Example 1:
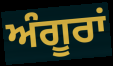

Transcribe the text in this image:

ਅੰਗੂਰਾਂ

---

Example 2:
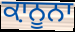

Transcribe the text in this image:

ਕ਼ਾਨੂਨਾ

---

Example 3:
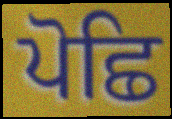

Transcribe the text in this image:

ਪੋਛਿ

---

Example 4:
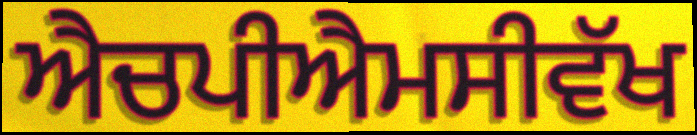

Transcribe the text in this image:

ਐਚਪੀਐਮਸੀਵੱਖ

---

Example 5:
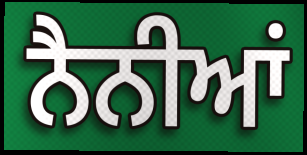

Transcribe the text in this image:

ਨੈਨੀਆਂ